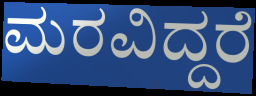
ಮರವಿದ್ದರೆ